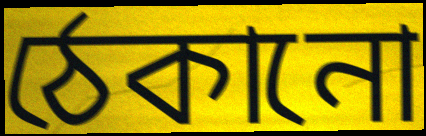
ঠেকানো